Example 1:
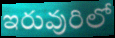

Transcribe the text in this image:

ఇరువురిలో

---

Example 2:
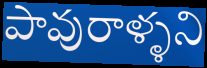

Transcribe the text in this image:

పావురాళ్ళని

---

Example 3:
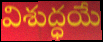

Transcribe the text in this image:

విశుద్ధయే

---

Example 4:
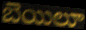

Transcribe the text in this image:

బెయిలూ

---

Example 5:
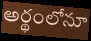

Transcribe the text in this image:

అర్థంలోనూ